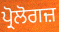
ਪ੍ਰੋਲੋਗਜ਼